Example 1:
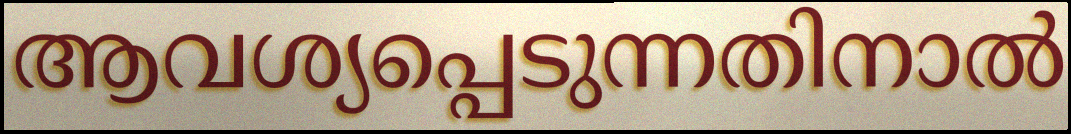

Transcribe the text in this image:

ആവശ്യപ്പെടുന്നതിനാൽ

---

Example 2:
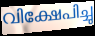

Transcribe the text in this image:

വിക്ഷേപിച്ചു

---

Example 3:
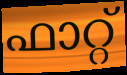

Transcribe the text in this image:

ഫാറ്റ്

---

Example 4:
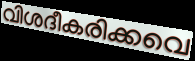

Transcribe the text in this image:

വിശദീകരിക്കവെ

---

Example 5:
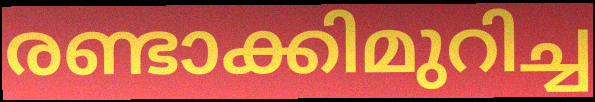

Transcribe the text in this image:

രണ്ടാക്കിമുറിച്ച